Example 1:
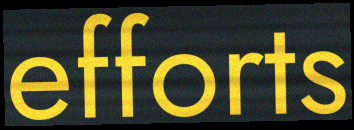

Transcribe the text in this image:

efforts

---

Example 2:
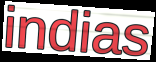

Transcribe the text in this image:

indias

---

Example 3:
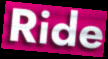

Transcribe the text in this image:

Ride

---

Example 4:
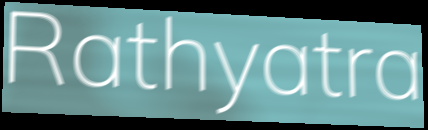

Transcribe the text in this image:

Rathyatra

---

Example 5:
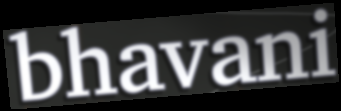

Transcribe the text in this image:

bhavani